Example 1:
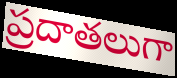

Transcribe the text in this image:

ప్రదాతలుగా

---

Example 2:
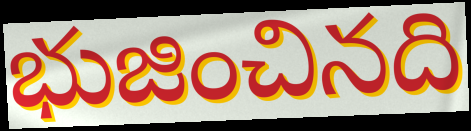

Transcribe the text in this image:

భుజించినది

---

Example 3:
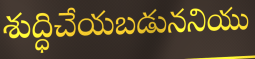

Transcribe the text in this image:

శుద్ధిచేయబడుననియు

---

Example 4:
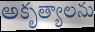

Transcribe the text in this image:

అకృత్యాలను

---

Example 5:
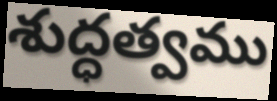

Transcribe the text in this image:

శుద్ధత్వము